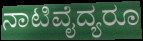
ನಾಟಿವೈದ್ಯರೂ